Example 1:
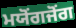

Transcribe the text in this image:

ਮਯੋਂਗਜੋਂਗ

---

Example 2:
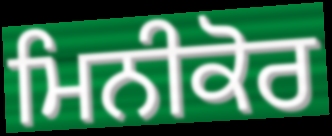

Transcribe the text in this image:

ਮਿਨੀਕੋਰ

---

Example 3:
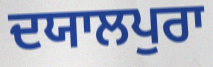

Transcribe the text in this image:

ਦਯਾਲਪੁਰਾ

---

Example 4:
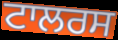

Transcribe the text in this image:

ਟਾਲਰਸ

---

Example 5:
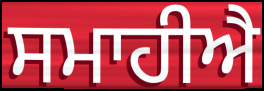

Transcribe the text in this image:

ਸਮਾਹੀਐ